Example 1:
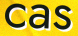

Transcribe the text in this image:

cas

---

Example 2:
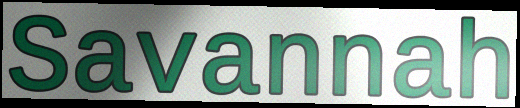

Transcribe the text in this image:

Savannah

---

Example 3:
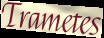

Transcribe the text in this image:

Trametes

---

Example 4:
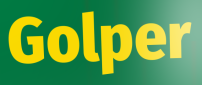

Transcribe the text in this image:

Golper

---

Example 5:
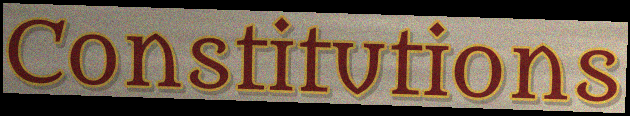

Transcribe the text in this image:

Constitutions